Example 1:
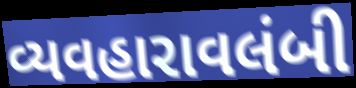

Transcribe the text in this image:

વ્યવહારાવલંબી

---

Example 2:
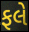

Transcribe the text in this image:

ફલે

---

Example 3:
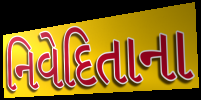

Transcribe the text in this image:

નિવેદિતાના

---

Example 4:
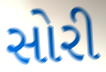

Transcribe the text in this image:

સોરી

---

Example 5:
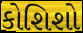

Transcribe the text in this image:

કોશિશો